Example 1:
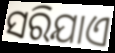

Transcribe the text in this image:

ସରିଯାଏ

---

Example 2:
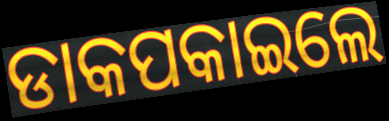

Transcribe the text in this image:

ଡାକପକାଇଲେ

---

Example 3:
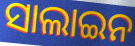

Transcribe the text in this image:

ସାଲାଇନ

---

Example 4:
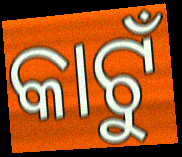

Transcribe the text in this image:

କାଟୁଁ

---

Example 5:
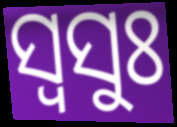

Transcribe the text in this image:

ସ୍ଵସୁଃ